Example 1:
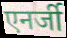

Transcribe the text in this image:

एनर्जी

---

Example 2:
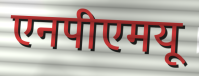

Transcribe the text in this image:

एनपीएमयू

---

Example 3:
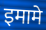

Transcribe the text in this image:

इमामे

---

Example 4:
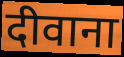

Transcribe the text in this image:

दीवाना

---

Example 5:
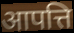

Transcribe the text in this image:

आपत्ति